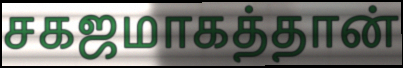
சகஜமாகத்தான்